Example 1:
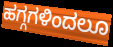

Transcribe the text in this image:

ಹಗ್ಗಗಳಿಂದಲೂ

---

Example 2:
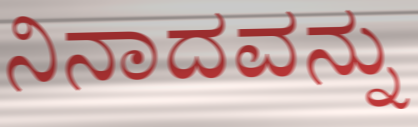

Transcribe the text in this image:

ನಿನಾದವನ್ನು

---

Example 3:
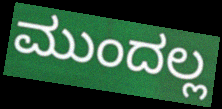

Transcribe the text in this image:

ಮುಂದಲ್ಲ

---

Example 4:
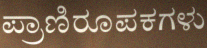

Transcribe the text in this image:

ಪ್ರಾಣಿರೂಪಕಗಳು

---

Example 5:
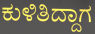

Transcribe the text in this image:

ಕುಳಿತಿದ್ದಾಗ